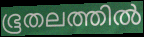
ഭൂതലത്തിൽ